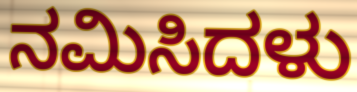
ನಮಿಸಿದಳು